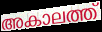
അകാലത്ത്